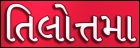
તિલોત્તમા